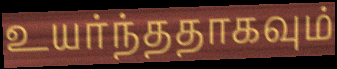
உயர்ந்ததாகவும்